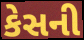
કેસની